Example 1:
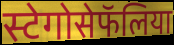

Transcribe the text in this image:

स्टेगोसेफॅलिया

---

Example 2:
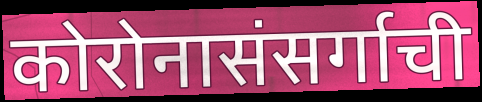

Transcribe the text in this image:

कोरोनासंसर्गाची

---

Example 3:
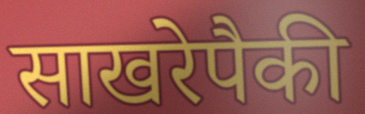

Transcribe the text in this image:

साखरेपैकी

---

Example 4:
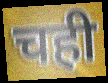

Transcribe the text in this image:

चही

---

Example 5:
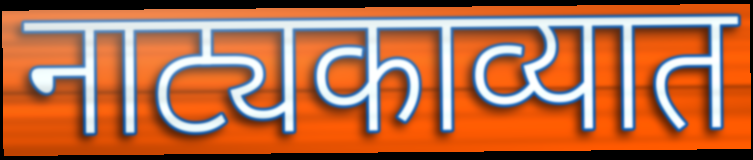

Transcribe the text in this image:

नाट्यकाव्यात